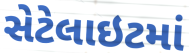
સેટેલાઇટમાં